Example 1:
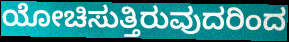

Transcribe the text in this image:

ಯೋಚಿಸುತ್ತಿರುವುದರಿಂದ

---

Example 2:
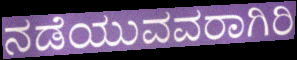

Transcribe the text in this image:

ನಡೆಯುವವರಾಗಿರಿ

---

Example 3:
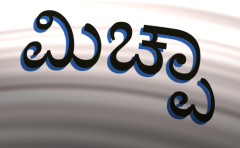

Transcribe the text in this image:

ಮಿಚ್ಪಾ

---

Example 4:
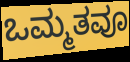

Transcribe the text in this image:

ಒಮ್ಮತವೂ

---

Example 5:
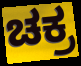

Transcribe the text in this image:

ಚಕ್ರ